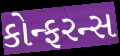
કોન્ફરન્સ